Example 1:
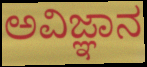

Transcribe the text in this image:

ಅವಿಜ್ಞಾನ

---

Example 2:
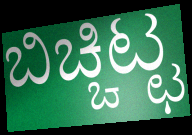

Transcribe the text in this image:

ಬಿಚ್ಚಿಟ್ಟ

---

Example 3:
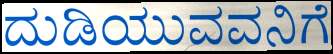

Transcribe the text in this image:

ದುಡಿಯುವವನಿಗೆ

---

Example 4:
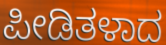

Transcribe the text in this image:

ಪೀಡಿತಳಾದ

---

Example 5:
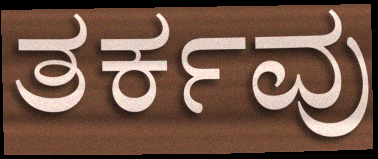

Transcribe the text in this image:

ತರ್ಕವು